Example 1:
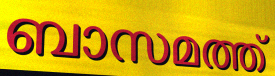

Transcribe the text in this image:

ബാസമത്ത്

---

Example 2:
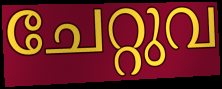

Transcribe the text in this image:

ചേറ്റുവ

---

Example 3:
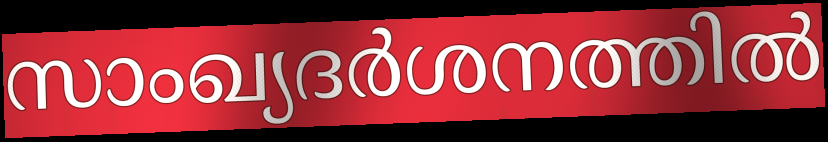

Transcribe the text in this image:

സാംഖ്യദർശനത്തിൽ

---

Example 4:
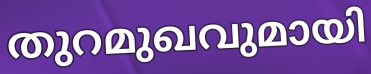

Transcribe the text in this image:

തുറമുഖവുമായി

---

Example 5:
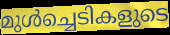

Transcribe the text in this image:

മുൾച്ചെടികളുടെ